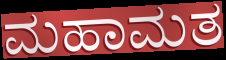
ಮಹಾಮತ